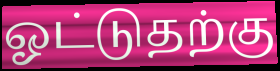
ஓட்டுதற்கு